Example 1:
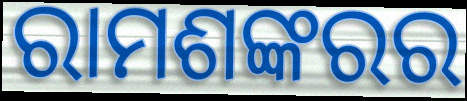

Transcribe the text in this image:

ରାମଶଙ୍କରର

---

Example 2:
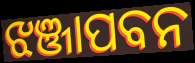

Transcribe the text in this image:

ଝଞ୍ଜାପବନ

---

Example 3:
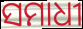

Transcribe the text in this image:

ସମାଧୀ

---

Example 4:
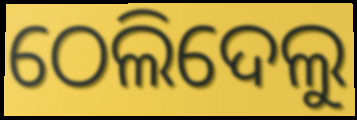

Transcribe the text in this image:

ଠେଲିଦେଲୁ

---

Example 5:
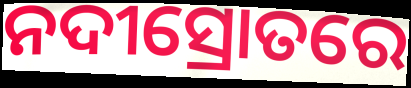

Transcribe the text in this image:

ନଦୀସ୍ରୋତରେ